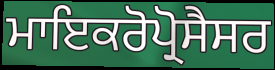
ਮਾਇਕਰੋਪ੍ਰੋਸੈਸਰ